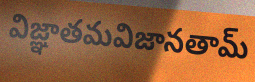
విజ్ఞాతమవిజానతామ్